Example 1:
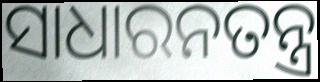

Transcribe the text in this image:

ସାଧାରନତନ୍ତ୍ର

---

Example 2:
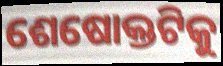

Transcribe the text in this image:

ଶେଷୋକ୍ତଟିକୁ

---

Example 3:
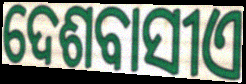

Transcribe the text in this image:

ଦେଶବାସୀଏ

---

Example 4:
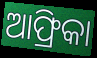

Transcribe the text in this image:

ଆଫ୍ରିକା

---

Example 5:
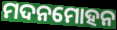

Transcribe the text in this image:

ମଦନମୋହନ